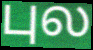
புல